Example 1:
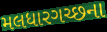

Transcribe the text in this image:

મલધારગચ્છના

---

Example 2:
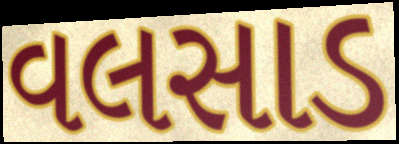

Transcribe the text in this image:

વલસાડ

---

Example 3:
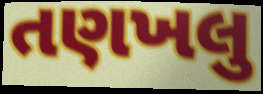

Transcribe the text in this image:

તણખલુ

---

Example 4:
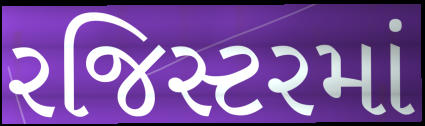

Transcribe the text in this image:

રજિસ્ટરમાં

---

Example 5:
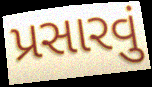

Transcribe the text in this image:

પ્રસારવું